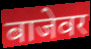
बाजेवर